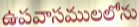
ఉపవాసములలోను